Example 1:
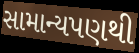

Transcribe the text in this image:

સામાન્યપણથી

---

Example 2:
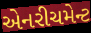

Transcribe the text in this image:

એનરીચમેન્ટ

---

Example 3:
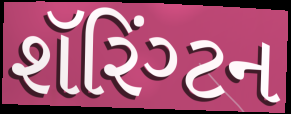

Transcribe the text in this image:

શૅરિંગ્ટન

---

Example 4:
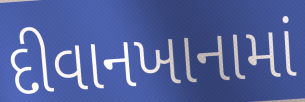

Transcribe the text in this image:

દીવાનખાનામાં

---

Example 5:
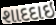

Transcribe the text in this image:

શાદદાઇ